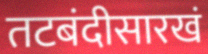
तटबंदीसारखं